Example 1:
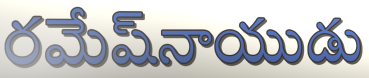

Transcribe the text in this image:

రమేష్‌నాయుడు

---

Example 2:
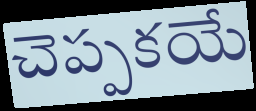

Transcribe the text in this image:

చెప్పకయే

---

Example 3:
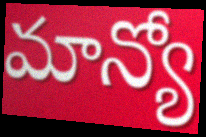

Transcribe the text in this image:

మాన్యో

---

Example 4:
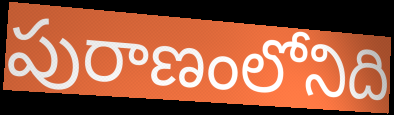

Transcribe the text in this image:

పురాణంలోనిది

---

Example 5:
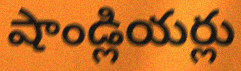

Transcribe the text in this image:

షాండ్లియర్లు